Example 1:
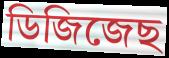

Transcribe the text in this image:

ডিজিজেছ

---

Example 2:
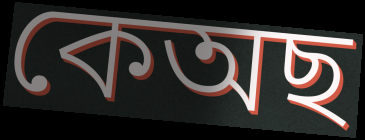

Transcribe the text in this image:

কেঅছ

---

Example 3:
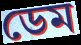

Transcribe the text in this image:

ডেম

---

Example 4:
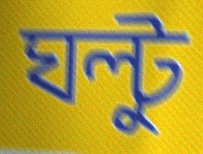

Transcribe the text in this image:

ঘল্টু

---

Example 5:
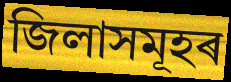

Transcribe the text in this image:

জিলাসমূহৰ